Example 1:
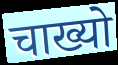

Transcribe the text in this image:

चाख्यो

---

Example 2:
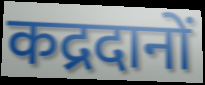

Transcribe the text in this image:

कद्रदानों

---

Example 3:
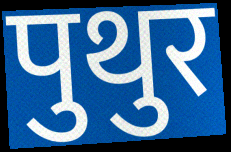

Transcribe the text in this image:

पुथुर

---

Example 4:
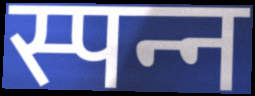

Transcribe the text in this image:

स्पन्न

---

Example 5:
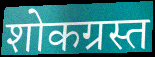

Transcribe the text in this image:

शोकग्रस्त